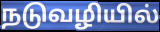
நடுவழியில்